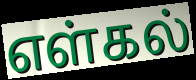
எள்கல்